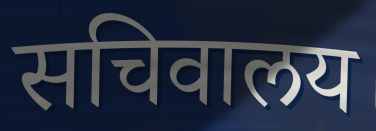
सचिवालय